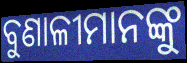
ବୁଣାଳୀମାନଙ୍କୁ